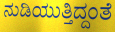
ನುಡಿಯುತ್ತಿದ್ದಂತೆ